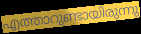
എത്താറുണ്ടായിരുന്നു